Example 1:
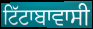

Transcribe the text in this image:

ਟਿੱਟਾਬਾਵਾਸੀ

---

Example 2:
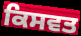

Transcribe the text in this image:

ਕਿਸਵਤ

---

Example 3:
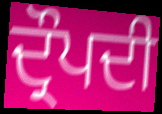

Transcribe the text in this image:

ਦ੍ਰੌਪਦੀ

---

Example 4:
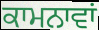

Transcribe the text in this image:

ਕਾਮਨਾਵਾਂ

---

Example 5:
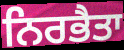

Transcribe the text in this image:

ਨਿਰਭੈਤਾ